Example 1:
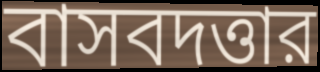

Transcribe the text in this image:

বাসবদত্তার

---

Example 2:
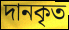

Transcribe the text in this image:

দানকৃত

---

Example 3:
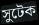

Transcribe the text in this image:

সুটেক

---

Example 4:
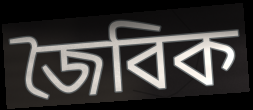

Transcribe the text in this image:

জৈবিক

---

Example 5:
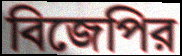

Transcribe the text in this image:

বিজেপির